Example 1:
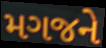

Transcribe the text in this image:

મગજને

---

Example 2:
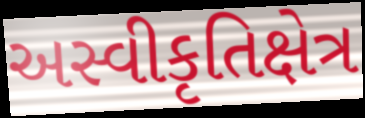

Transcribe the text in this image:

અસ્વીકૃતિક્ષેત્ર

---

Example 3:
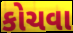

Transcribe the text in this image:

કોચવા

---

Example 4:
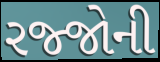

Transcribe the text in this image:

રજ્જોની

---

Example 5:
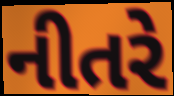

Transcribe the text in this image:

નીતરે